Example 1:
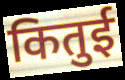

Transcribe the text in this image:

कितुई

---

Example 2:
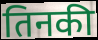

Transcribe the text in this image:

तिनकी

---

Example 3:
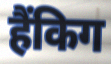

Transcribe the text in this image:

हैंकिग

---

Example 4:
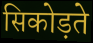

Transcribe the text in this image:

सिकोड़ते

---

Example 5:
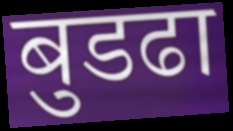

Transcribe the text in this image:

बुडढा